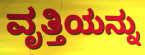
ವೃತ್ತಿಯನ್ನು